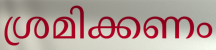
ശ്രമിക്കണം